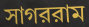
সাগররাম